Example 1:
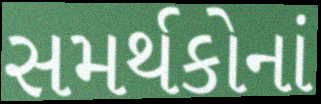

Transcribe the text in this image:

સમર્થકોનાં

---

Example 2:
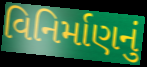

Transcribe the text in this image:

વિનિર્માણનું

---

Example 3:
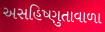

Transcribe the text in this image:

અસહિષ્ણુતાવાળા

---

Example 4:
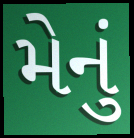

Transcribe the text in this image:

મેનું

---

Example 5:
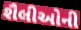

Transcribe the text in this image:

શૈલીઓની